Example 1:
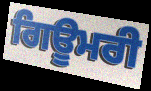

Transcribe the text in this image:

ਗਿਊਮਰੀ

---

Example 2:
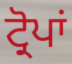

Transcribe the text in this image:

ਟ੍ਰੋਪਾਂ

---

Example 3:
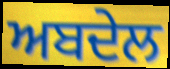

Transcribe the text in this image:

ਅਬਦੇਲ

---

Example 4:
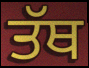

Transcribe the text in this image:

ਤੱਥ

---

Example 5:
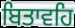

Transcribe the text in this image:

ਬਿਤਾਵਹਿ